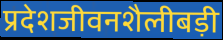
प्रदेशजीवनशैलीबड़ी